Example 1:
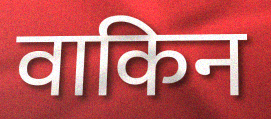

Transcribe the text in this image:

वाकिन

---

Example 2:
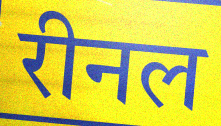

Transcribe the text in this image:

रीनल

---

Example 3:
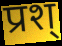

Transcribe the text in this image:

प्रश्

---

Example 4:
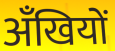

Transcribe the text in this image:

अँखियों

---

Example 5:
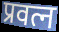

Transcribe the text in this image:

प्रवत्न